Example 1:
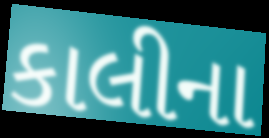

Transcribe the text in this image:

કાલીના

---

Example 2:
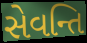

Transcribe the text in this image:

સેવન્તિ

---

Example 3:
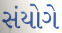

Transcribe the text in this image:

સંયોગે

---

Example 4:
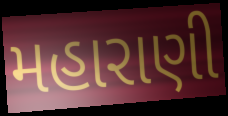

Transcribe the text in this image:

મહારાણી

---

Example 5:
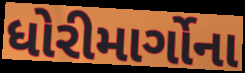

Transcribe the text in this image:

ધોરીમાર્ગોના